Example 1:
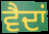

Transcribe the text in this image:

ਵੈਦਾਂ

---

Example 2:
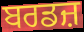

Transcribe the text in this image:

ਬਰਡਜ਼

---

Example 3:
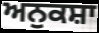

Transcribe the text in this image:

ਅਨੁਕਸ਼ਾ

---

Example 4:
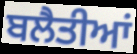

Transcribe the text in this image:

ਬਲੈਤੀਆਂ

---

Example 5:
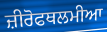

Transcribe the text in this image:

ਜ਼ੀਰੋਫਥਲਮੀਆ